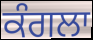
ਕੰਗਲਾ